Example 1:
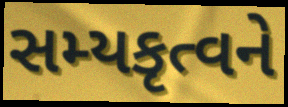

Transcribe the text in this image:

સમ્યકૃત્વને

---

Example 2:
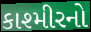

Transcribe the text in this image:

કાશ્મીરનો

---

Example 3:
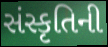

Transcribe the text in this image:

સંસ્કૃતિની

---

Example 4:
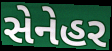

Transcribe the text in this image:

સેનેહર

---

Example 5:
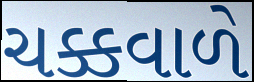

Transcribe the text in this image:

ચક્કવાળે